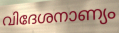
വിദേശനാണ്യം